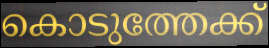
കൊടുത്തേക്ക്